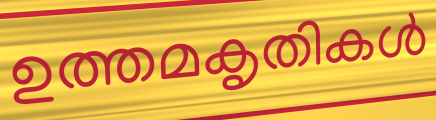
ഉത്തമകൃതികൾ